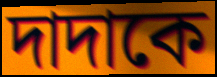
দাদাকে